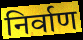
निर्वाण